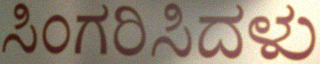
ಸಿಂಗರಿಸಿದಳು